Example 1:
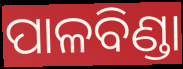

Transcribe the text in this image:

ପାଳବିଣ୍ଡା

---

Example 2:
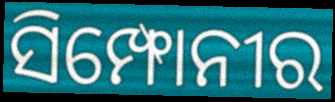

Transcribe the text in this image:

ସିମ୍ଫୋନୀର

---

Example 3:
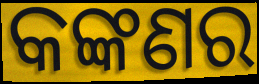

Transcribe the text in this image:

କଙ୍କଣର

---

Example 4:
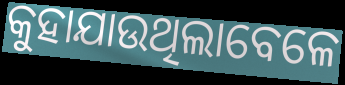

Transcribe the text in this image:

କୁହାଯାଉଥିଲାବେଳେ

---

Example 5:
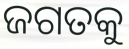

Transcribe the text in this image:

ଜଗତକୁ